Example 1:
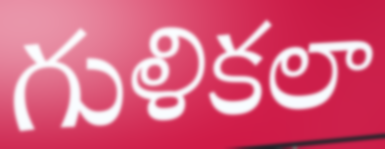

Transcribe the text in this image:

గుళికలా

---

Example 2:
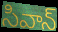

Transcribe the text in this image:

సివాన్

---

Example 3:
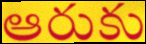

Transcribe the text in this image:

ఆరుకు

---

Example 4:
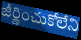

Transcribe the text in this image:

జీర్ణించుకోలేని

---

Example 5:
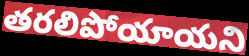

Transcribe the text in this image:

తరలిపోయాయని